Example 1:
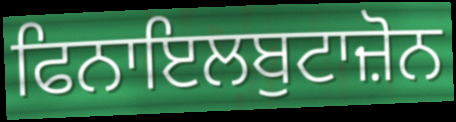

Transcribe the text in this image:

ਫਿਨਾਇਲਬੁਟਾਜ਼ੋਨ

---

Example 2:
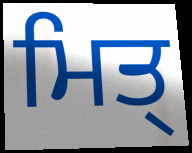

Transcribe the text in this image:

ਮਿਤ੍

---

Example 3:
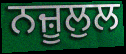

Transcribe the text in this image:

ਨਜ਼ੂਲੁਲ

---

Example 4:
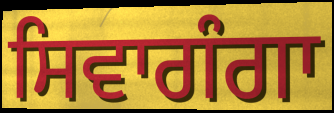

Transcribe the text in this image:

ਸਿਵਾਗੰਗਾ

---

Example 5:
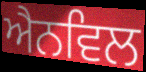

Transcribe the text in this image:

ਐਨਵਿਲ